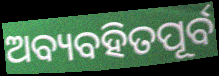
ଅବ୍ୟବହିତପୂର୍ବ